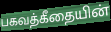
பகவத்கீதையின்